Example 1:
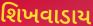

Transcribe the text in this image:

શિખવાડાય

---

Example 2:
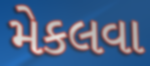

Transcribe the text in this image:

મેકલવા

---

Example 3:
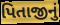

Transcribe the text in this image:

પિતાજીનું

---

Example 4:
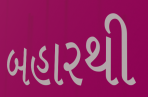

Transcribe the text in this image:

બહારથી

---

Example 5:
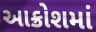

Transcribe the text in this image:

આક્રોશમાં